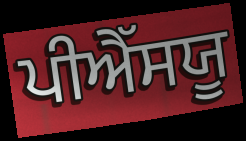
ਪੀਐੱਸਯੂ